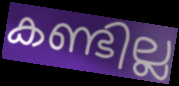
കണ്ടില്ല